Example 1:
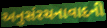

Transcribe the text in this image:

અનુસંરચનાવાદની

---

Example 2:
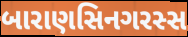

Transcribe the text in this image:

બારાણસિનગરસ્સ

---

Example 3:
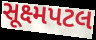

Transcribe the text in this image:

સૂક્ષ્મપટલ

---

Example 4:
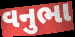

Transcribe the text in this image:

વનુભા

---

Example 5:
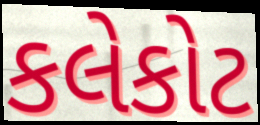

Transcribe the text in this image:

કલેકોટ